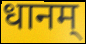
धानम्